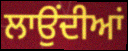
ਲਾਉੰਦੀਆਂ